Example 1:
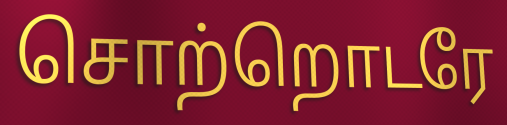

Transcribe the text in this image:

சொற்றொடரே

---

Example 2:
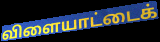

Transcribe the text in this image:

விளையாட்டைக்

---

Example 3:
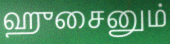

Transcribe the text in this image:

ஹுசைனும்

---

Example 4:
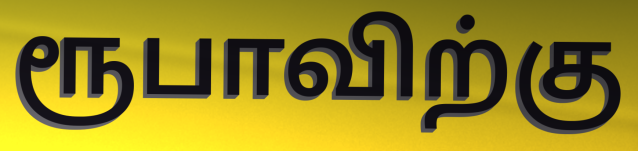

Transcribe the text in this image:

ரூபாவிற்கு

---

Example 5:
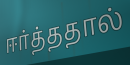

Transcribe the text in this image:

ஈர்த்ததால்